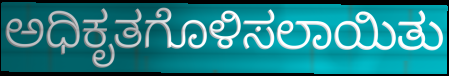
ಅಧಿಕೃತಗೊಳಿಸಲಾಯಿತು